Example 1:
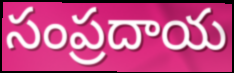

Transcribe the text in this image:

సంప్రదాయ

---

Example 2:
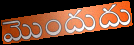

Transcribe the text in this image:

మొందుదు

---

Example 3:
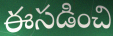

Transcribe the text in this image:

ఈసడించి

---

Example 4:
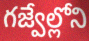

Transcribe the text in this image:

గజ్వేల్లోని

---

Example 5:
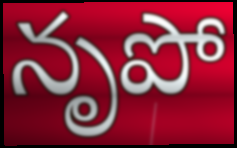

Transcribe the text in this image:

నృపో